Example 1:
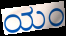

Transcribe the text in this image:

ಯಂ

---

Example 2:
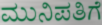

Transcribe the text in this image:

ಮುನಿಪತಿಗೆ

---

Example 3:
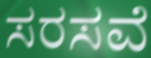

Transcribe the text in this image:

ಸರಸವೆ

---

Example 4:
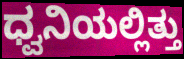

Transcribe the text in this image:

ಧ್ವನಿಯಲ್ಲಿತ್ತು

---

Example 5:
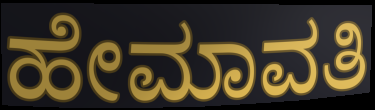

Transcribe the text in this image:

ಹೇಮಾವತಿ